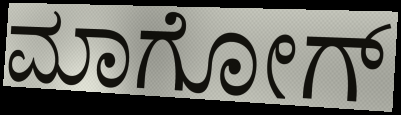
ಮಾಗೋಗ್